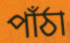
পাঁঠা